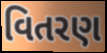
વિતરણ